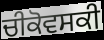
ਚੀਕੋਵਸਕੀ